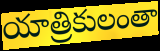
యాత్రికులంతా